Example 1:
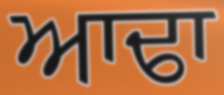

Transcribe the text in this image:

ਆਢਾ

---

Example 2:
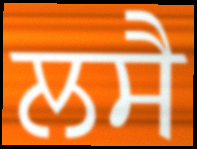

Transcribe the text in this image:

ਲਸੈ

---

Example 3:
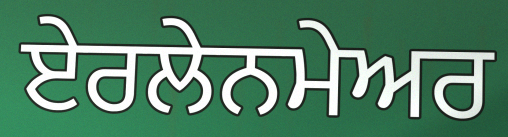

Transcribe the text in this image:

ਏਰਲੇਨਮੇਅਰ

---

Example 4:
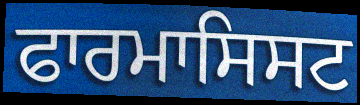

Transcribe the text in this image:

ਫਾਰਮਾਸਿਸਟ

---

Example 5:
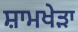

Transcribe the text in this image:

ਸ਼ਾਮਖੇੜਾ